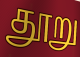
தூறு